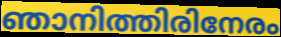
ഞാനിത്തിരിനേരം